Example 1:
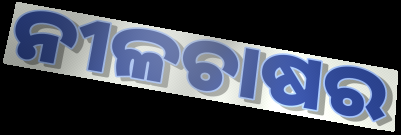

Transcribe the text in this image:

ନୀଳଚାଷର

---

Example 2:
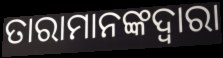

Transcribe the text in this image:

ତାରାମାନଙ୍କଦ୍ୱାରା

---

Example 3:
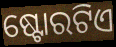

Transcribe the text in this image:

ଷ୍ଟୋରଟିଏ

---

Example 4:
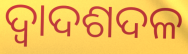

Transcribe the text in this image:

ଦ୍ୱାଦଶଦଳ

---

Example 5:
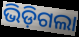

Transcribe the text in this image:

ଭିଡ଼ିଗଲା